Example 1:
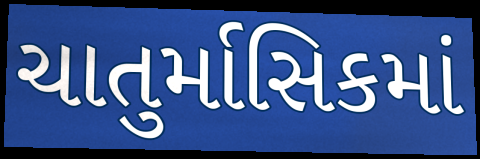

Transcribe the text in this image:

ચાતુર્માસિકમાં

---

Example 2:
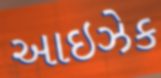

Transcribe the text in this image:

આઇઝેક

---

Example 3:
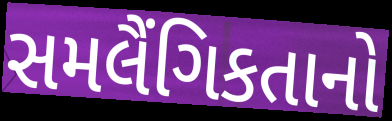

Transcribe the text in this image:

સમલૈંગિકતાનો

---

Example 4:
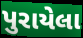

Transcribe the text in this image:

પુરાયેલા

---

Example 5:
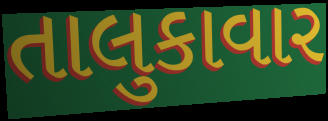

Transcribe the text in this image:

તાલુકાવાર